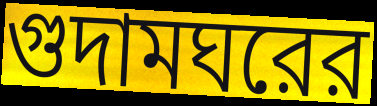
গুদামঘরের